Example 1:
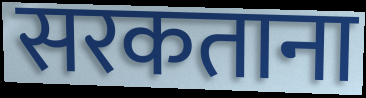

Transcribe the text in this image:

सरकताना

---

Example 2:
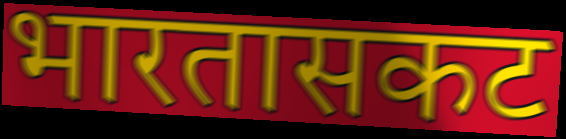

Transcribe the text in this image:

भारतासकट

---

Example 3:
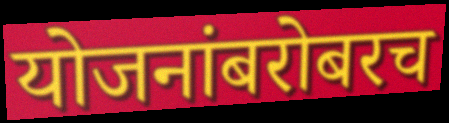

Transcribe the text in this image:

योजनांबरोबरच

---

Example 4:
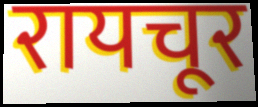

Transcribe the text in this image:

रायचूर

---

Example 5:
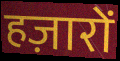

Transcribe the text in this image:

हज़ारों